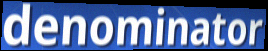
denominator